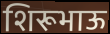
शिरूभाऊ